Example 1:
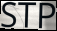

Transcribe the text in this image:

STP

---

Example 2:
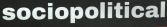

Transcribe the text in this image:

sociopolitical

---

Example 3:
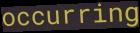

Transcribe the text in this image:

occurring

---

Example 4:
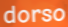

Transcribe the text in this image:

dorso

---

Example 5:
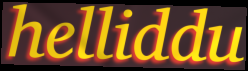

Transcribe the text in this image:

helliddu